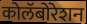
कोलॅबोरेशन